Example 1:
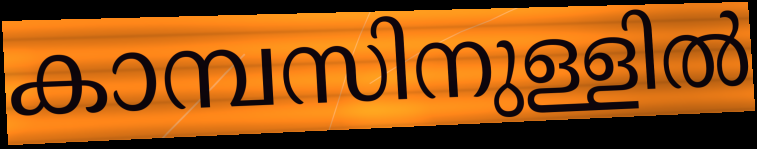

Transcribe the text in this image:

കാമ്പസിനുള്ളിൽ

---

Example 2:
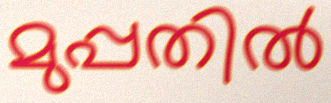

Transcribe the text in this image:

മുപ്പതിൽ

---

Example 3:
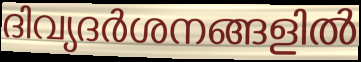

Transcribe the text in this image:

ദിവ്യദർശനങ്ങളിൽ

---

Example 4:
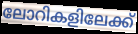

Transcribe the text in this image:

ലോറികളിലേക്ക്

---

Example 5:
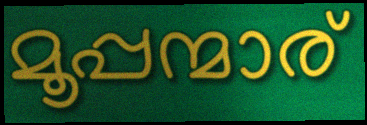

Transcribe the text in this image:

മൂപ്പന്മാര്